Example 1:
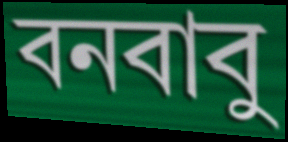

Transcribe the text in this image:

বনবাবু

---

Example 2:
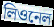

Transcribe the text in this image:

লিওনেল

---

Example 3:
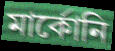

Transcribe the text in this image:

মার্কোনি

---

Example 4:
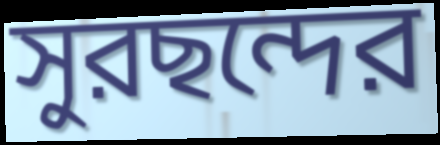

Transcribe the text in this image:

সুরছন্দের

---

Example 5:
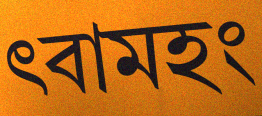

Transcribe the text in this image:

ৎবামহং